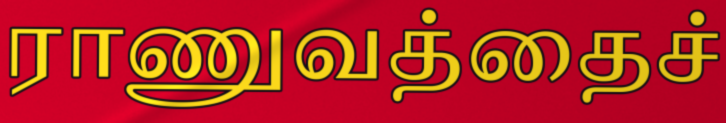
ராணுவத்தைச்